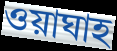
ওয়াঘাহ